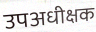
उपअधीक्षक